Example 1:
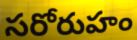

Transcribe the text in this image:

సరోరుహం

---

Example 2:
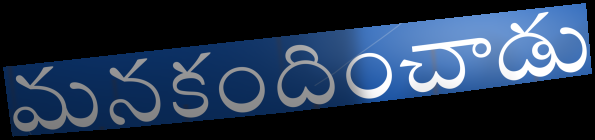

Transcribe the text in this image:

మనకందించాడు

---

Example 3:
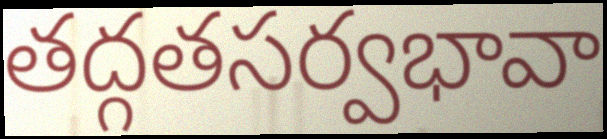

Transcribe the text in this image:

తద్గతసర్వభావా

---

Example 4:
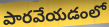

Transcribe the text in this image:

పారవేయడంలో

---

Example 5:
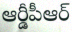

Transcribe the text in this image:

ఆర్డీపీఆర్